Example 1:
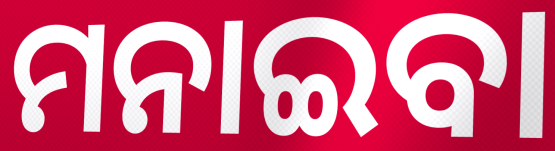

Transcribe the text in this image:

ମନାଇବା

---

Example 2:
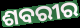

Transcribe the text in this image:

ଶବରୀର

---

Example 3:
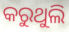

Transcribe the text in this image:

କରୁଥୁଲି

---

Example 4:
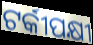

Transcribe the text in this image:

ଟର୍କୀପକ୍ଷୀ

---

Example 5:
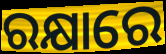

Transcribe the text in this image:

ରକ୍ଷାରେ